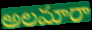
అలమారా